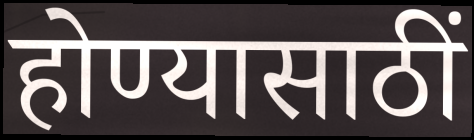
होण्यासाठीं